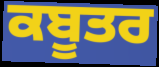
ਕਬੂਤਰ